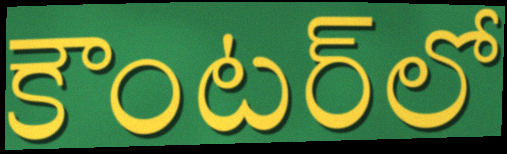
కౌంటర్‌లో